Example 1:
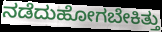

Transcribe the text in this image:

ನಡೆದುಹೋಗಬೇಕಿತ್ತು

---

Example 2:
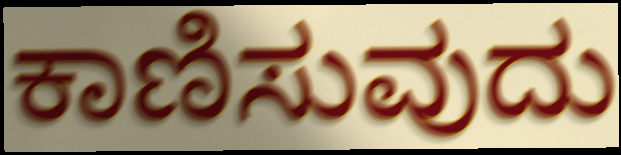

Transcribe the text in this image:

ಕಾಣಿಸುವುದು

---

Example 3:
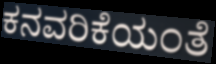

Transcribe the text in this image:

ಕನವರಿಕೆಯಂತೆ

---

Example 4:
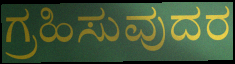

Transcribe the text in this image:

ಗ್ರಹಿಸುವುದರ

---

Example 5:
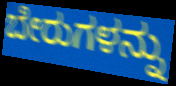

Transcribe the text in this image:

ಬೇರುಗಳನ್ನು